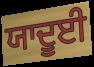
ਯਾਦੂਈ